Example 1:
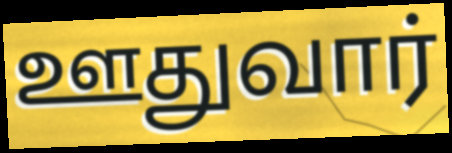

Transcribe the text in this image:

ஊதுவார்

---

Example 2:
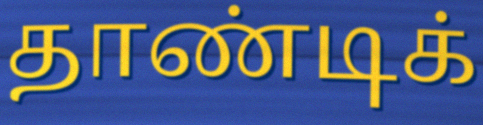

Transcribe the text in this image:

தாண்டிக்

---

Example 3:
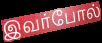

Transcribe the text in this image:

இவர்போல்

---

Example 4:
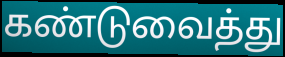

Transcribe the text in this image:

கண்டுவைத்து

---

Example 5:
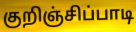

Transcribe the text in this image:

குறிஞ்சிப்பாடி